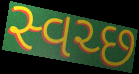
સ્વચ્છ